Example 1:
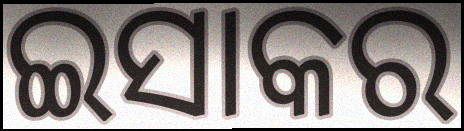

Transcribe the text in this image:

ଇସାକର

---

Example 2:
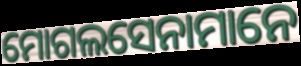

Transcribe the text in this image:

ମୋଗଲସେନାମାନେ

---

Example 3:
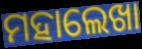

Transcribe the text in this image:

ମହାଲେଖା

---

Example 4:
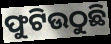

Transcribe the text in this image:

ଫୁଟିଉଠୁଛି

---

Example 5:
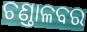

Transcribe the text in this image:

ଚଣ୍ଡାଳବର